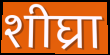
शीघ्रा